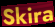
Skira